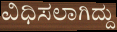
ವಿಧಿಸಲಾಗಿದ್ದು